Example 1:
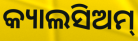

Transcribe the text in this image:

କ୍ୟାଲସିଅମ୍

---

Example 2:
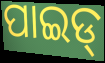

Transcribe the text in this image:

ପାଇଡ୍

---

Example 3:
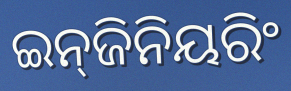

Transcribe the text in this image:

ଇନ୍‍ଜିନିୟରିଂ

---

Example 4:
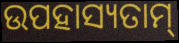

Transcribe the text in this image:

ଉପହାସ୍ୟତାମ୍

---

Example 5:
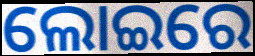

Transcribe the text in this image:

ଲୋଇରେ